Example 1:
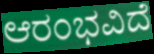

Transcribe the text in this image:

ಆರಂಭವಿದೆ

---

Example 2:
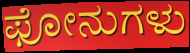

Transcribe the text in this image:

ಫೋನುಗಳು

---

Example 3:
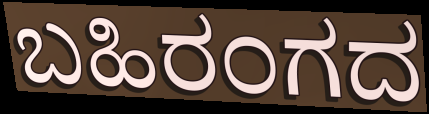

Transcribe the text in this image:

ಬಹಿರಂಗದ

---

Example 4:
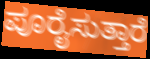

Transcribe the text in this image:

ಪೂರೈಸುತ್ತಾರೆ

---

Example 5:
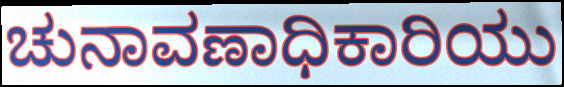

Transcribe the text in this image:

ಚುನಾವಣಾಧಿಕಾರಿಯು